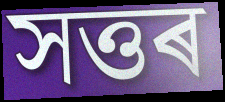
সত্তৰ